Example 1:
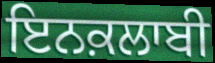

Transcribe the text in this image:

ਇਨਕ਼ਲਾਬੀ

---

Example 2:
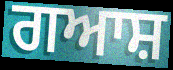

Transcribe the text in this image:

ਗਆਸ਼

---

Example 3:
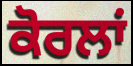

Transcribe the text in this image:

ਕੋਰਲਾਂ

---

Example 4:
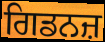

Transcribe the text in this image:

ਗਿਡਨਜ਼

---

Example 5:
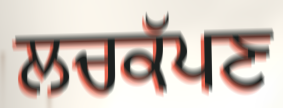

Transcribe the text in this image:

ਲਚਕੱਪਣ